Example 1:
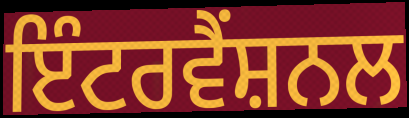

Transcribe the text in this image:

ਇੰਟਰਵੈਂਸ਼ਨਲ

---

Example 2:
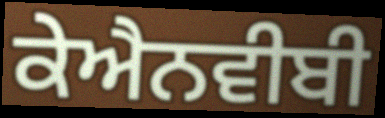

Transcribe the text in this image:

ਕੇਐਨਵੀਬੀ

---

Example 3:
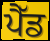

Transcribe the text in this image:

ਪੈੱਡ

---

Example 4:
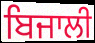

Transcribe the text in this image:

ਬਿਜਾਲੀ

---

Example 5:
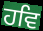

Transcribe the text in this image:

ਹਵਿ